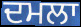
ਦਮਲਾ